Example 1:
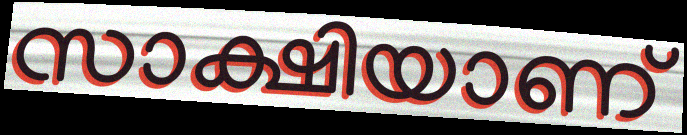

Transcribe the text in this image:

സാക്ഷിയാണ്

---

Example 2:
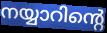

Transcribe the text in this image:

നയ്യാറിന്റെ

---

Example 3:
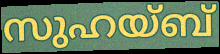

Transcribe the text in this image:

സുഹയ്ബ്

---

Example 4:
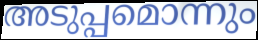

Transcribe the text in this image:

അടുപ്പമൊന്നും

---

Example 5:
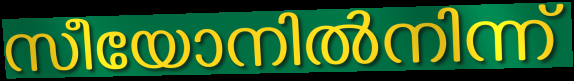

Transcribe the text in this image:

സീയോനിൽനിന്ന്